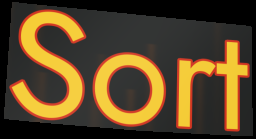
Sort